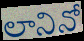
లానినో